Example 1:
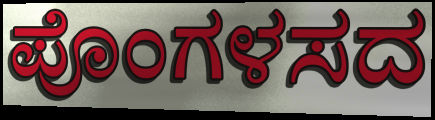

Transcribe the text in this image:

ಪೊಂಗಳಸದ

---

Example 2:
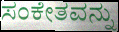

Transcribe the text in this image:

ಸಂಕೇತವನ್ನು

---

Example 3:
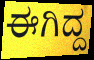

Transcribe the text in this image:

ಈಗಿದ್ದ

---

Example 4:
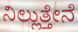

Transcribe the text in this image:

ನಿಲ್ಲುತ್ತೇನೆ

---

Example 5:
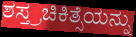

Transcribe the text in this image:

ಶಸ್ತ್ರಚಿಕಿತ್ಸೆಯನ್ನು